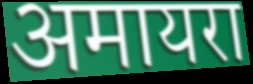
अमायरा